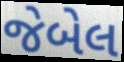
જેબેલ